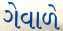
ગેવાળે